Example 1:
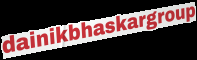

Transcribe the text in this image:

dainikbhaskargroup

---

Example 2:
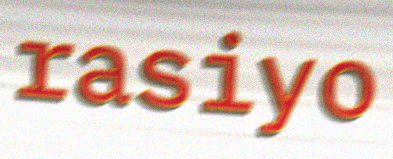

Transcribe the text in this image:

rasiyo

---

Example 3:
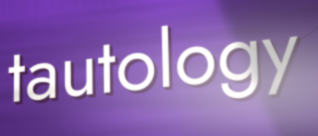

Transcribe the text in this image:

tautology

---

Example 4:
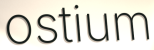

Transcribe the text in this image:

ostium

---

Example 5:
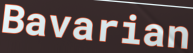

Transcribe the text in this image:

Bavarian